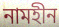
নামহীন